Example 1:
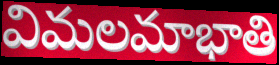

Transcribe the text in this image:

విమలమాభాతి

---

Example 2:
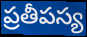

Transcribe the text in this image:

ప్రతీపస్య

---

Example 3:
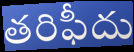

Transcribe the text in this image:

తరిఫీదు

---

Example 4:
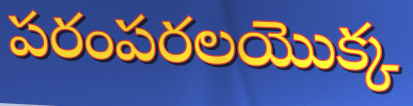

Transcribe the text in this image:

పరంపరలయొక్క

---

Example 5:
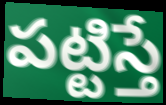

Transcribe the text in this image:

పట్టిస్తే